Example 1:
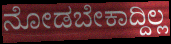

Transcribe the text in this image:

ನೋಡಬೇಕಾದ್ದಿಲ್ಲ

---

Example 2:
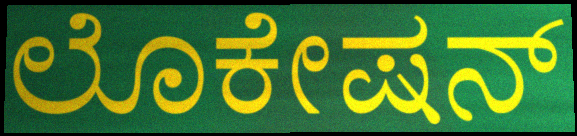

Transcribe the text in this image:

ಲೊಕೇಷನ್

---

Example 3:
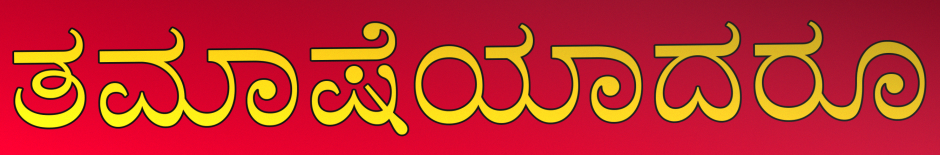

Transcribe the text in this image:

ತಮಾಷೆಯಾದರೂ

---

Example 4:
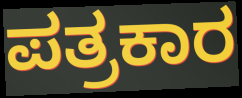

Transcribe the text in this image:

ಪತ್ರಕಾರ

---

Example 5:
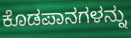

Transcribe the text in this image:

ಕೊಡಪಾನಗಳನ್ನು